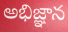
అభిజ్ఞాన